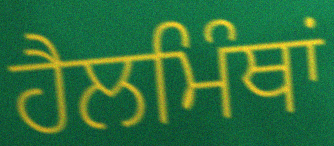
ਹੈਲਮਿੰਥਾਂ